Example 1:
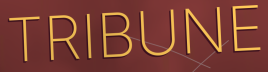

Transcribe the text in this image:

TRIBUNE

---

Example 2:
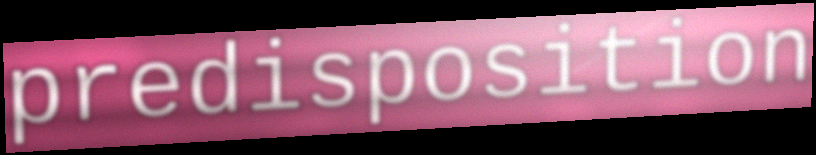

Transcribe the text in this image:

predisposition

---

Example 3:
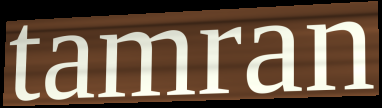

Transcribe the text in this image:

tamran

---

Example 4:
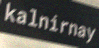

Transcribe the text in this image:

kalnirnay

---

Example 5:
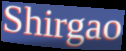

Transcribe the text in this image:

Shirgao